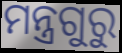
ମନ୍ତ୍ରଗୁରୁ